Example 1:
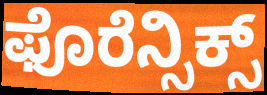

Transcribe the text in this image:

ಫೊರೆನ್ಸಿಕ್ಸ್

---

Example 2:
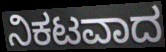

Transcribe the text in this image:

ನಿಕಟವಾದ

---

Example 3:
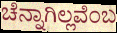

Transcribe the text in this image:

ಚೆನ್ನಾಗಿಲ್ಲವೆಂಬ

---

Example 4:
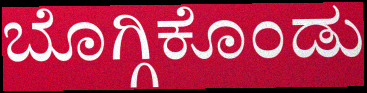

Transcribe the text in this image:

ಬೊಗ್ಗಿಕೊಂಡು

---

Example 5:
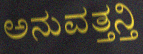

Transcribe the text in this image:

ಅನುವತ್ತನ್ತಿ